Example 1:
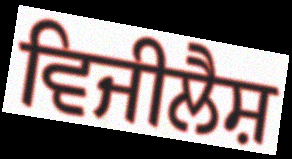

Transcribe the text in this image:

ਵਿਜੀਲੈਸ਼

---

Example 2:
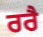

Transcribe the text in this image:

ਰਰੈ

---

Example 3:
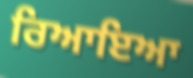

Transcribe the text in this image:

ਰਿਆਇਆ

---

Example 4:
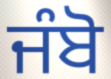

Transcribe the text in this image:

ਜੰਬੋ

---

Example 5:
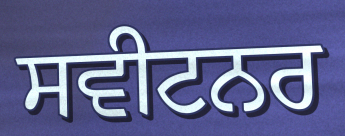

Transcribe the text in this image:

ਸਵੀਟਨਰ